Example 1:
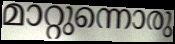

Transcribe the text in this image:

മാറ്റുന്നൊരു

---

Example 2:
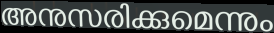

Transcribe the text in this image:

അനുസരിക്കുമെന്നും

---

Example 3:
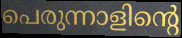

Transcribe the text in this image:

പെരുന്നാളിന്റെ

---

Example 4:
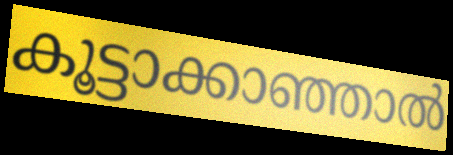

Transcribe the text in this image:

കൂട്ടാക്കാഞ്ഞാൽ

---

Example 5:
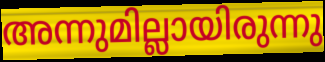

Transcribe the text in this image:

അന്നുമില്ലായിരുന്നു